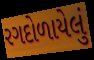
રગદોળાયેલું